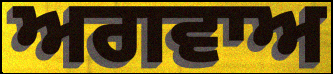
ਅਗਵਾਅ